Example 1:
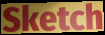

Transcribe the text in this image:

Sketch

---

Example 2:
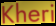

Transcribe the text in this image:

Kheri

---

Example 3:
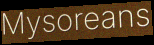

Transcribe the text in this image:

Mysoreans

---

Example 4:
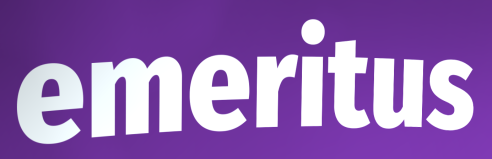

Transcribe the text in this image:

emeritus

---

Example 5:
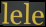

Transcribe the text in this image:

lele